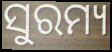
ସୁରମ୍ୟ